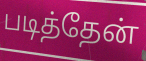
படித்தேன்